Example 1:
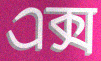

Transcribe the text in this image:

এক্স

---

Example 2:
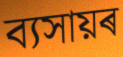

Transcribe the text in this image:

ব্যসায়ৰ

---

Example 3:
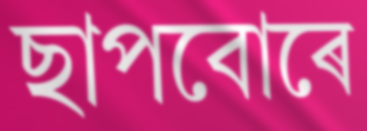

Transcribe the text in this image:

ছাপবোৰে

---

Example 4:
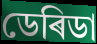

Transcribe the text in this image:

ডেৰিডা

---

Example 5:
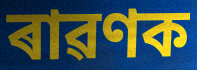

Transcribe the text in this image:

ৰাৱণক